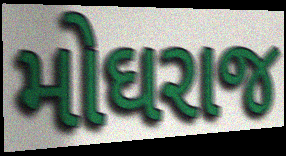
મોઘરાજ